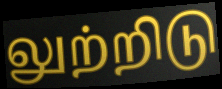
லுற்றிடு